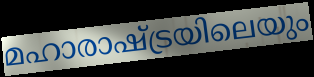
മഹാരാഷ്ട്രയിലെയും